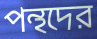
পন্থদের